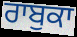
ਰਾਬੁਕਾ